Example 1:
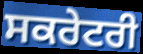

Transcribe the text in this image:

ਸਕਰੇਟਰੀ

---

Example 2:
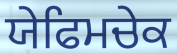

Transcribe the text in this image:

ਯੇਫਿਮਚੇਕ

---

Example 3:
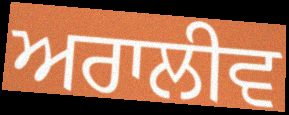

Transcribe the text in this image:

ਅਰਾਲੀਵ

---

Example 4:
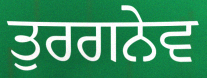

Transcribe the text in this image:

ਤੁਰਗਨੇਵ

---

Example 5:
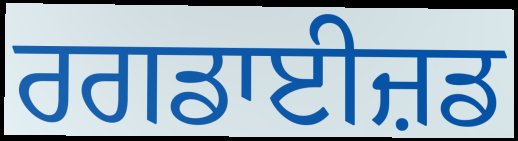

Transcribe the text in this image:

ਰਗਡਾਈਜ਼ਡ